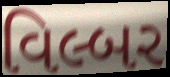
વિલ્બર